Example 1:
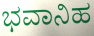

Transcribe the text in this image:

ಭವಾನಿಹ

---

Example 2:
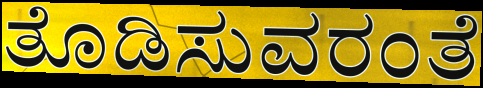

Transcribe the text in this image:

ತೊಡಿಸುವರಂತೆ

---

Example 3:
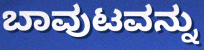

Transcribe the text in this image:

ಬಾವುಟವನ್ನು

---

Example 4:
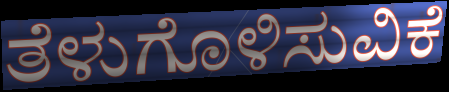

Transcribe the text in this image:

ತೆಳುಗೊಳಿಸುವಿಕೆ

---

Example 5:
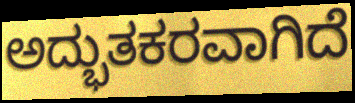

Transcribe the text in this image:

ಅದ್ಭುತಕರವಾಗಿದೆ